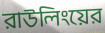
রাউলিংয়ের